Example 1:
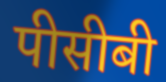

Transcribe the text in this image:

पीसीबी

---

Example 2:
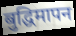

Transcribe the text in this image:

बुद्धिमापन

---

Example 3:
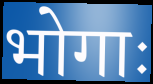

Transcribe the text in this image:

भोगाः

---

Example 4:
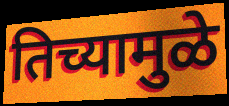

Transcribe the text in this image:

तिच्यामुळे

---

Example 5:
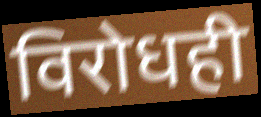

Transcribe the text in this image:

विरोधही